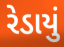
રેડાયું